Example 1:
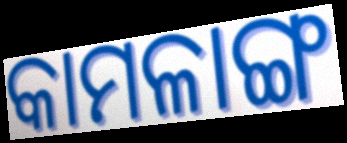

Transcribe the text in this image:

କାମଳାଙ୍ଗ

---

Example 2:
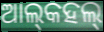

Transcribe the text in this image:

ଆଲ୍‌କହଲ୍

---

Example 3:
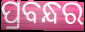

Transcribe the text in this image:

ପ୍ରବନ୍ଧର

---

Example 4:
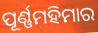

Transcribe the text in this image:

ପୂର୍ଣ୍ଣମହିମାର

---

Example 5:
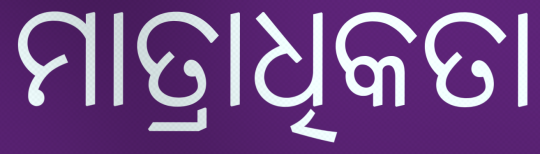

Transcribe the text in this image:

ମାତ୍ରାଧିକତା